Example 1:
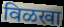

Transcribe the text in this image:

विळखा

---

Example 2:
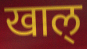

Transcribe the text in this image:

खाल्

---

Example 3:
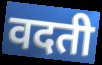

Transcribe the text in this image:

वदती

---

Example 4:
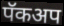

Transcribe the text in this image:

पॅकअप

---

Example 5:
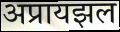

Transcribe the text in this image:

अप्रायझल